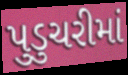
પુડુચરીમાં